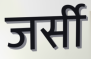
जर्सी